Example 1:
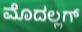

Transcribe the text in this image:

ಮೊದಲ್ಲಗ್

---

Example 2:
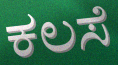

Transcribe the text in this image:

ಕಲಸೆ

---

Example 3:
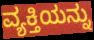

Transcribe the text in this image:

ವ್ಯಕ್ತಿಯನ್ನು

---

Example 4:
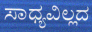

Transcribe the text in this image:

ಸಾಧ್ಯವಿಲ್ಲದ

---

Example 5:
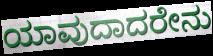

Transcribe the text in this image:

ಯಾವುದಾದರೇನು